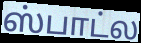
ஸ்பாட்ல